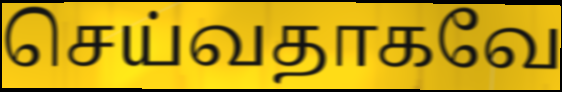
செய்வதாகவே